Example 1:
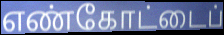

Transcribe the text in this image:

எண்கோட்டைப்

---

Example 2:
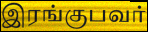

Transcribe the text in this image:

இரங்குபவர்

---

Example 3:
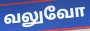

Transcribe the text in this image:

வலுவோ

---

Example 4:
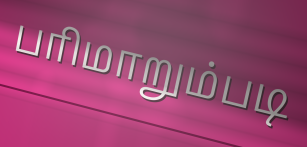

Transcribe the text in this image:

பரிமாறும்படி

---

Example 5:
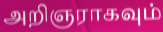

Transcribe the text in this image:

அறிஞராகவும்